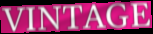
VINTAGE